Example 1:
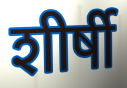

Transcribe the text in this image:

शीर्षी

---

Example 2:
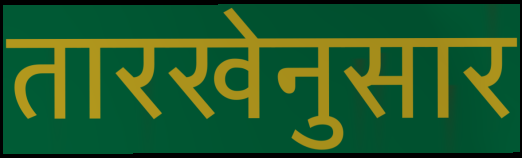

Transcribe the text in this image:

तारखेनुसार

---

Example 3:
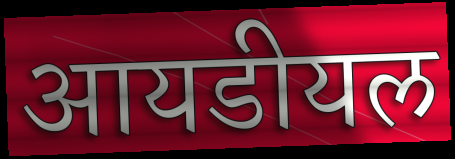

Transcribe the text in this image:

आयडीयल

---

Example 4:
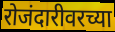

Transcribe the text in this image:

रोजंदारीवरच्या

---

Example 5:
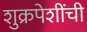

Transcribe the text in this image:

शुक्रपेशींची